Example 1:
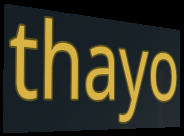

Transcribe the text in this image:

thayo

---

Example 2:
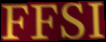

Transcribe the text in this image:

FFSI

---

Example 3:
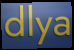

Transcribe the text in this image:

dlya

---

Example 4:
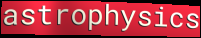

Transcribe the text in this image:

astrophysics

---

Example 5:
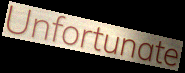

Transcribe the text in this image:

Unfortunate